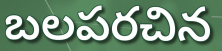
బలపరచిన